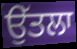
ਉੱਤਲਾ